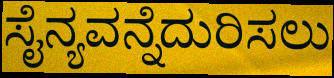
ಸೈನ್ಯವನ್ನೆದುರಿಸಲು